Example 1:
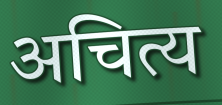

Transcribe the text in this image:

अचित्य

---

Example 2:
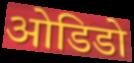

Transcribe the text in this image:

ओडिडो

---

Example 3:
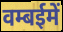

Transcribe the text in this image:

वम्बईमें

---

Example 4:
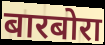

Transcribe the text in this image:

बारबोरा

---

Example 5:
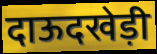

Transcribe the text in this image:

दाऊदखेड़ी